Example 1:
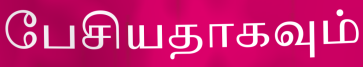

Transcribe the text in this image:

பேசியதாகவும்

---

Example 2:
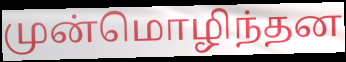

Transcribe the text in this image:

முன்மொழிந்தன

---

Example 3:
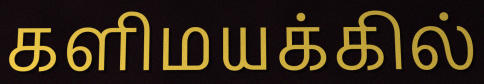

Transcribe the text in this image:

களிமயக்கில்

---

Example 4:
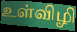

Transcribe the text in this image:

உள்விழி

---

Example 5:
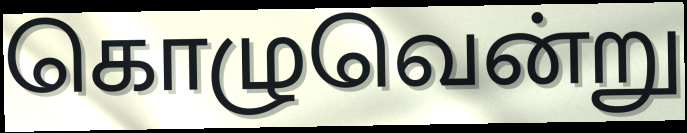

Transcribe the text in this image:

கொழுவென்று